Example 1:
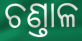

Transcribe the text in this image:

ଚଣ୍ତାଳ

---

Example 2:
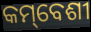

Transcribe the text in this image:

କମ୍‌ବେଶୀ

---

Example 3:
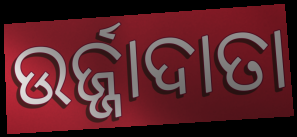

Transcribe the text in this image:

ଉର୍ଜ୍ଜାଦାତା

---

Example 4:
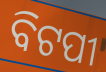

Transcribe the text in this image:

ବିଟପୀ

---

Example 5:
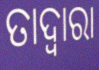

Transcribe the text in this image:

ତାଦ୍ଵାରା